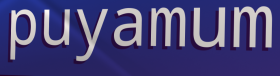
puyamum